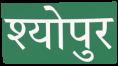
श्‍योपुर